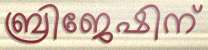
ബ്രിജേഷിന്